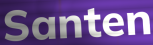
Santen